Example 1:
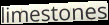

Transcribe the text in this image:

limestones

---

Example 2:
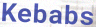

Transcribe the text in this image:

Kebabs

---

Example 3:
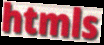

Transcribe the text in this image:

htmls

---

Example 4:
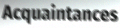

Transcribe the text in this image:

Acquaintances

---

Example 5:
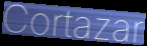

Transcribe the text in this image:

Cortazar